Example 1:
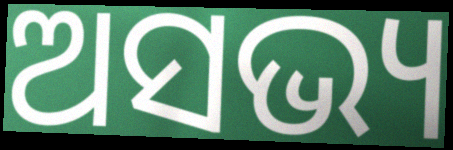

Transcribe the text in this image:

ଅସଭ୍ୟ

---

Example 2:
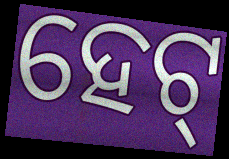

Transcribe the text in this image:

ହେଟ୍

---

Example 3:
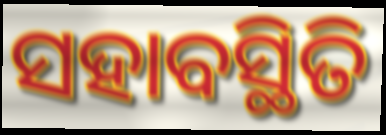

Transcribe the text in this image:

ସହାବସ୍ଥିତି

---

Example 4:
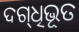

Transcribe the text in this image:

ଦଗ୍‌ଧିଭୂତ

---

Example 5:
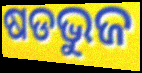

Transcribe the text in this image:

ଷଡଭୁଜ